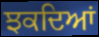
ਝਕਦਿਆਂ